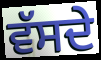
ਵੱਸਦੇ